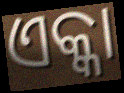
ଏକ୍କା